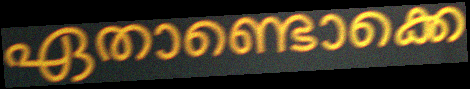
ഏതാണ്ടൊക്കെ